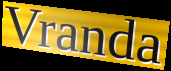
Vranda